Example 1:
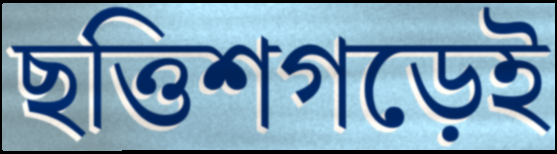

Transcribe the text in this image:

ছত্তিশগড়েই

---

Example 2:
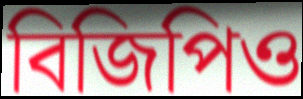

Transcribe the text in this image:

বিজিপিও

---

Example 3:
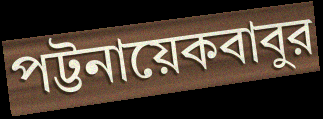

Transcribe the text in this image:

পট্টনায়েকবাবুর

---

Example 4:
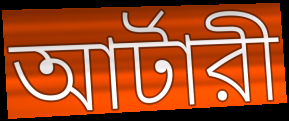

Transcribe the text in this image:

আর্টারী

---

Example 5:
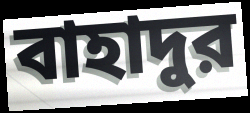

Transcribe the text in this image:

বাহাদুর